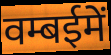
वम्बईमें